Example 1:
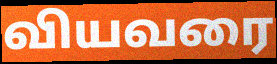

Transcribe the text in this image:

வியவரை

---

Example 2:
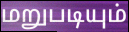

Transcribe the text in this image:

மறுபடியும்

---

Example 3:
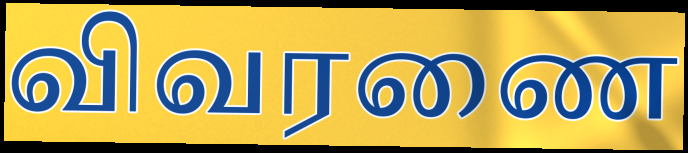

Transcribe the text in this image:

விவரணை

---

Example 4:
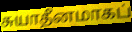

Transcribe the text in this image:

சுயாதீனமாகப்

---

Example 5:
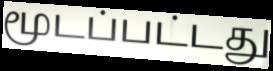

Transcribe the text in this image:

மூடப்பட்டது